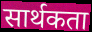
सार्थकता